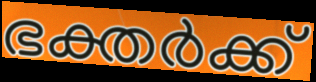
ഭക്തർക്ക്